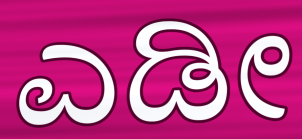
ಎಡೀ